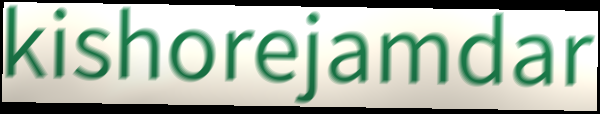
kishorejamdar